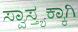
ಸ್ವಾಸ್ತ್ಯಕ್ಕಾಗಿ